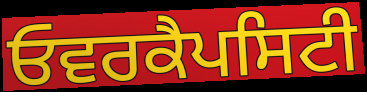
ਓਵਰਕੈਪਸਿਟੀ